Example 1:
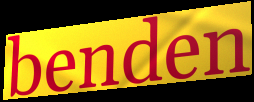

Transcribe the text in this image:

benden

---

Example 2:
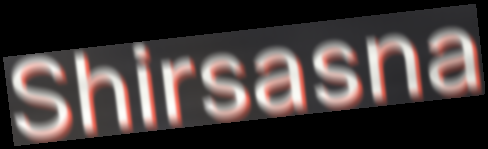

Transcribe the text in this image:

Shirsasna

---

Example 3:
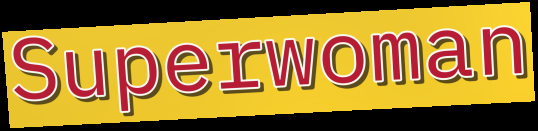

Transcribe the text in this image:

Superwoman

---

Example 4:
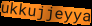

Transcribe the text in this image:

ukkujjeyya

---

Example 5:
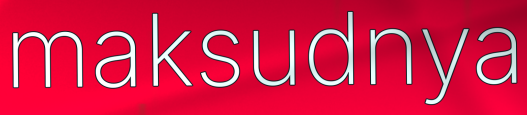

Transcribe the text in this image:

maksudnya